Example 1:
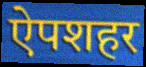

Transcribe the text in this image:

ऐपशहर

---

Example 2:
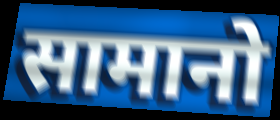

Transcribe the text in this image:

सामानो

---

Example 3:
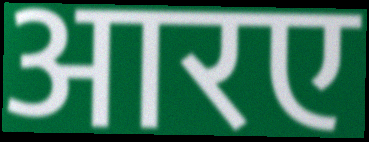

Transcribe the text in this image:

आरए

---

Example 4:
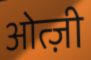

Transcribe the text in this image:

ओत्ज़ी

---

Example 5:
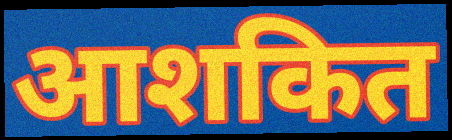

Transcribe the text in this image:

आशकित